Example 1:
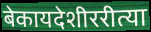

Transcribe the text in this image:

बेकायदेशीररीत्या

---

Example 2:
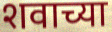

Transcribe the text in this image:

शवाच्या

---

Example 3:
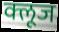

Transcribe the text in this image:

क्लूज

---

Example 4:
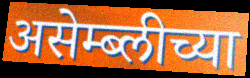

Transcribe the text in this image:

असेम्ब्लीच्या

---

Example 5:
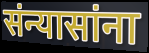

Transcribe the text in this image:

संन्यासांना